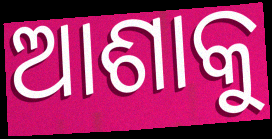
ଆଶାକୁ